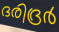
ദരിദ്രർ